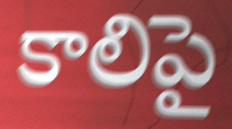
కాలిపై